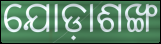
ଯୋଡ଼ାଶଙ୍ଖ